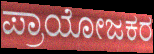
ಪ್ರಾಯೋಜಕರ